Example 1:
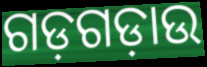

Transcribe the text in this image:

ଗଡ଼ଗଡ଼ାଉ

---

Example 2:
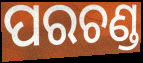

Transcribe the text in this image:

ପରଚଣ୍ଡ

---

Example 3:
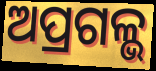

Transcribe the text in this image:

ଅପ୍ରଗଳ୍ଭ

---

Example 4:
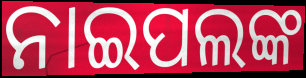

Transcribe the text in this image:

ନାଇପଲଙ୍କ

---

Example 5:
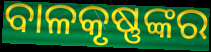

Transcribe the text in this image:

ବାଳକୃଷ୍ଣଙ୍କର